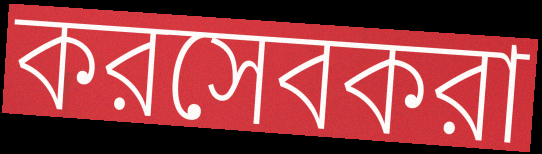
করসেবকরা